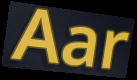
Aar